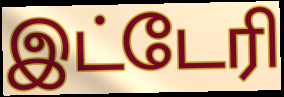
இட்டேரி